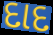
દાદ